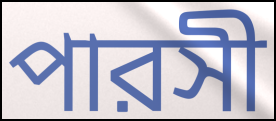
পারসী